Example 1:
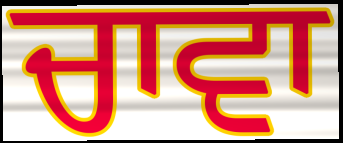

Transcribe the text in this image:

ਚਾਵਾ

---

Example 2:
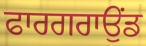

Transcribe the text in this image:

ਫਾਰਗਰਾਉਂਡ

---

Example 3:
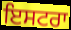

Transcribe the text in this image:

ਇਸਟਰਾ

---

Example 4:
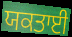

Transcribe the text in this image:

ਯਕਤਾਈ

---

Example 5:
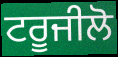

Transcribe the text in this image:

ਟਰੂਜੀਲੋ